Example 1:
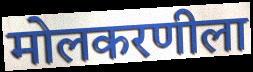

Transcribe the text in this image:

मोलकरणीला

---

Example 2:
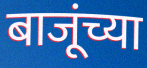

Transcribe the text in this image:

बाजूंच्या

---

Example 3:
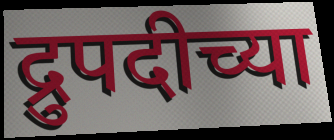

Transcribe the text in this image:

द्रुपदीच्या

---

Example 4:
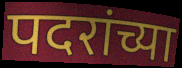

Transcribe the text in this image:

पदरांच्या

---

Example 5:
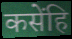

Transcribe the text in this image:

कसेंहि